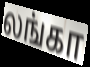
லங்கா